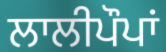
ਲਾਲੀਪੌਪਾਂ